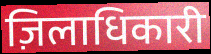
ज़िलाधिकारी